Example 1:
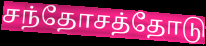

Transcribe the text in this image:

சந்தோசத்தோடு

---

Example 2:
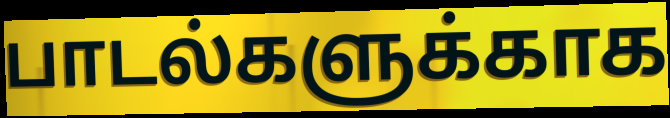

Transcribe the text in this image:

பாடல்களுக்காக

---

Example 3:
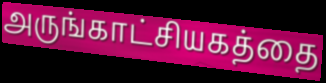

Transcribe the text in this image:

அருங்காட்சியகத்தை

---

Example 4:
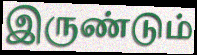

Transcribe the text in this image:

இருண்டும்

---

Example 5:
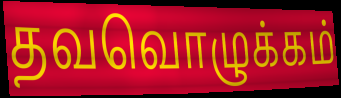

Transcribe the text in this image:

தவவொழுக்கம்